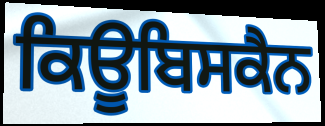
ਕਿਊਬਿਸਕੈਨ